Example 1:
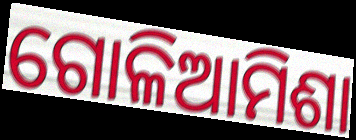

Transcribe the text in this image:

ଗୋଳିଆମିଶା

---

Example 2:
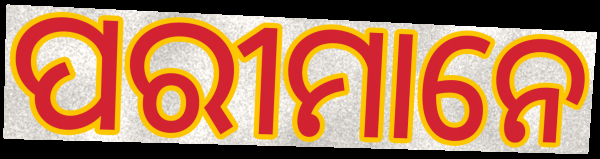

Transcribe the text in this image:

ପରୀମାନେ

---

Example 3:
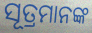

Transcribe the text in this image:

ସୂତ୍ରମାନଙ୍କ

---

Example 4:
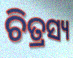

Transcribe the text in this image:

ଚିତ୍ରସ୍ୟ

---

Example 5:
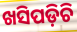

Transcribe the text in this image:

ଖସିପଡ଼ିଚି